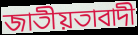
জাতীয়তাবাদী